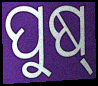
ପୁଷ୍